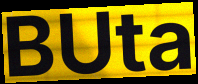
BUta